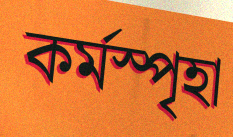
কর্মস্পৃহা